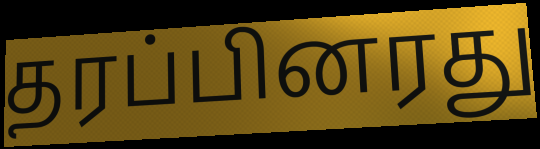
தரப்பினரது